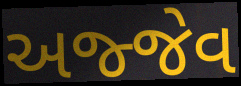
અજ્જેવ